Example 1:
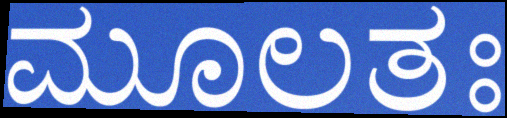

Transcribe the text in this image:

ಮೂಲತಃ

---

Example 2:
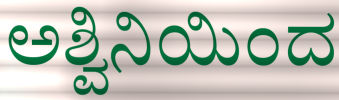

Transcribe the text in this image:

ಅಶ್ವಿನಿಯಿಂದ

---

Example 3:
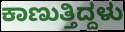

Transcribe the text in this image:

ಕಾಣುತ್ತಿದ್ದಳು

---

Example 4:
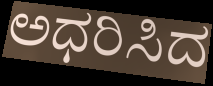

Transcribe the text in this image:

ಅಧರಿಸಿದ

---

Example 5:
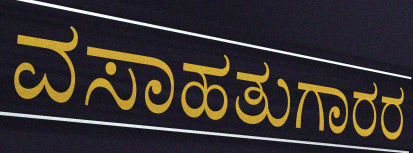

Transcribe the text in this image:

ವಸಾಹತುಗಾರರ